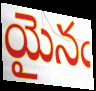
యైనఁ